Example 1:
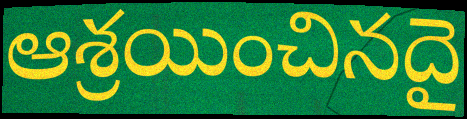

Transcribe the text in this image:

ఆశ్రయించినదై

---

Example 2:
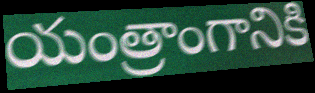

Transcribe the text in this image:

యంత్రాంగానికి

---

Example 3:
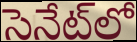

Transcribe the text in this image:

సెనేట్‌లో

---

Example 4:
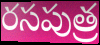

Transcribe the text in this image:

రసపుత్ర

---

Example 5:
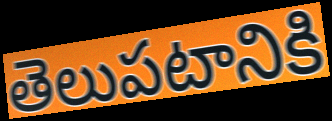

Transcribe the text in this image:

తెలుపటానికి